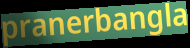
pranerbangla